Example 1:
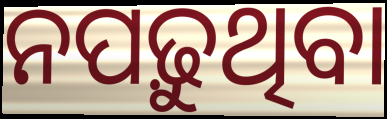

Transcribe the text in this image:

ନପଢ଼ୁଥିବା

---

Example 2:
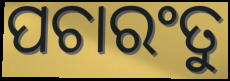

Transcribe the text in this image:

ପଚାରଂତୁ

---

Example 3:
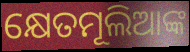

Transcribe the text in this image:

କ୍ଷେତମୂଲିଆଙ୍କ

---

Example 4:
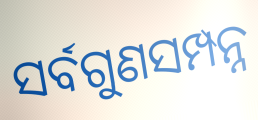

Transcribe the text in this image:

ସର୍ବଗୁଣସମ୍ପନ୍ନ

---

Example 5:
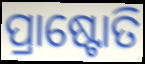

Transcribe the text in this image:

ପ୍ରାଷ୍ଟୋତି